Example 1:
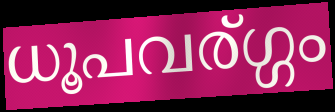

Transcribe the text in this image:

ധൂപവര്ഗ്ഗം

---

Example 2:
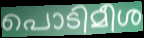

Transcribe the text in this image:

പൊടിമീശ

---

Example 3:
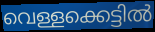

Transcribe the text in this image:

വെള്ളക്കെട്ടിൽ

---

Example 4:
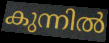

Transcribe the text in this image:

കുന്നിൽ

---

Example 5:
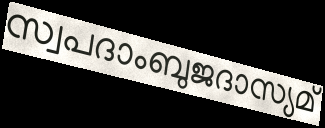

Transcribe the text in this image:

സ്വപദാംബുജദാസ്യമ്